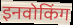
इनवोकिंग